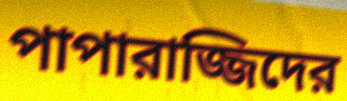
পাপারাজ্জিদের